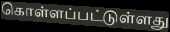
கொள்ளப்பட்டுள்ளது